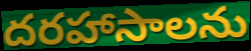
దరహాసాలను